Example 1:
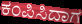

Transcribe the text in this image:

ಕಂಪಿಸಿದಾಗ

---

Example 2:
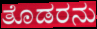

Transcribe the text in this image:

ತೊಡರನು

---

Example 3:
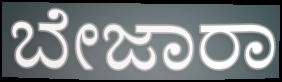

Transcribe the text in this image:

ಬೇಜಾರಾ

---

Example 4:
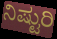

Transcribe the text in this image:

ನಿಷ್ಟುರಿ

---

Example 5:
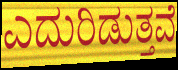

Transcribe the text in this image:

ಎದುರಿಡುತ್ತವೆ